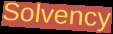
Solvency